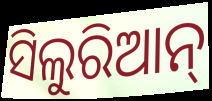
ସିଲୁରିଆନ୍